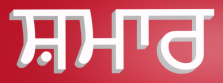
ਸ਼ਮਾਰ